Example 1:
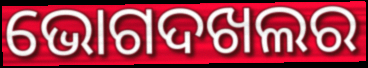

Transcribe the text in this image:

ଭୋଗଦଖଲର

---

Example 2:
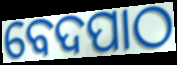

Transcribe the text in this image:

ବେଦପାଠ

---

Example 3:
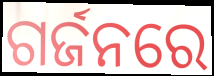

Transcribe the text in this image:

ଗର୍ଜନରେ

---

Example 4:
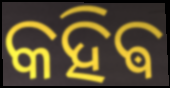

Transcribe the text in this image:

କହିଵ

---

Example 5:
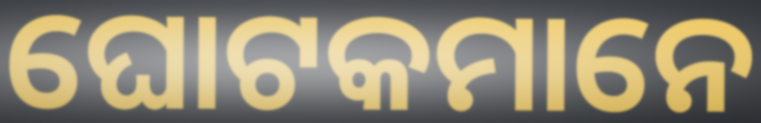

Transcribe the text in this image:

ଘୋଟକମାନେ